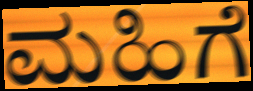
ಮಹಿಗೆ